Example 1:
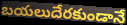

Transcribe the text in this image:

బయలుదేరకుండానే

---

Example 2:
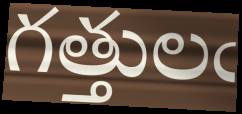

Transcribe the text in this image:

గత్తులఁ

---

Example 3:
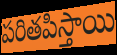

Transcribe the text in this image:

పరితపిస్తాయి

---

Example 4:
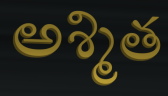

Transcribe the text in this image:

అశ్మిత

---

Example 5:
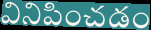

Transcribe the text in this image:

వినిపించడం